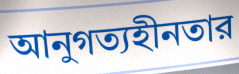
আনুগত্যহীনতার